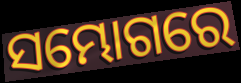
ସମ୍ଭୋଗରେ